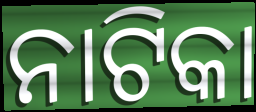
ନାଟିକା